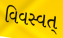
વિવસ્વત્